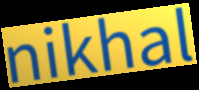
nikhal